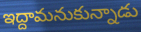
ఇద్దామనుకున్నాడు